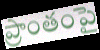
ప్రాంతంపై